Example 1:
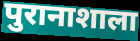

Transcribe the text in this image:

पुरानाशाला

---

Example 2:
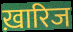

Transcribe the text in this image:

ख़ारिज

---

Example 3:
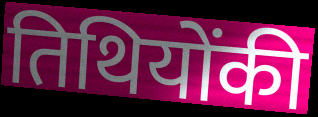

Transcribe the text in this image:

तिथियोंकी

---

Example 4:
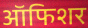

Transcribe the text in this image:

ऑफिशर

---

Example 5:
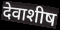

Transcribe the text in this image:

देवाशीष